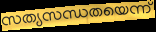
സത്യസന്ധതയെന്ന്